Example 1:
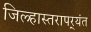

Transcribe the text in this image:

जिल्हास्तरापर्यंत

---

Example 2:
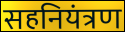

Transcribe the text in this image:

सहनियंत्रण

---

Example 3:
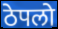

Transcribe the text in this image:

ठेपलो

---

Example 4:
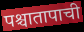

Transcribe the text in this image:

पश्चातापाची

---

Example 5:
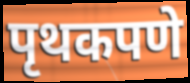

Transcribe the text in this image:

पृथकपणे